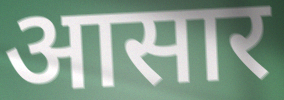
आसार